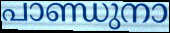
പാണ്ഡുനാ